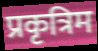
प्रकृत्रिम